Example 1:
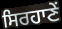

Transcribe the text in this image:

ਸਿਰਹਾਣੇਂ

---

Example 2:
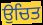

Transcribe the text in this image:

ਉਚਿਤ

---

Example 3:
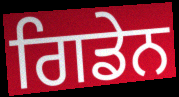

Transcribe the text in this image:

ਗਿਡੇਨ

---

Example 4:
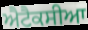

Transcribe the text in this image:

ਐਟੈਕਸੀਆ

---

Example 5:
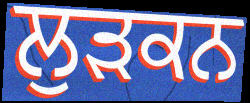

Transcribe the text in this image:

ਲੁੜਕਨ